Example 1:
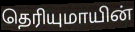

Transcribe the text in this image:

தெரியுமாயின்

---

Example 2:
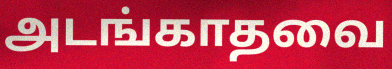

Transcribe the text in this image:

அடங்காதவை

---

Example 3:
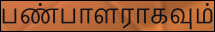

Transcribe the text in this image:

பண்பாளராகவும்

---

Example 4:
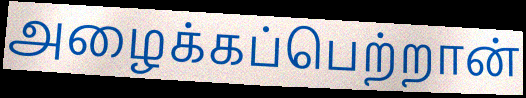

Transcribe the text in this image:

அழைக்கப்பெற்றான்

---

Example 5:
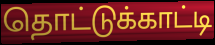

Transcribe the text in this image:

தொட்டுக்காட்டி